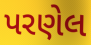
પરણેલ